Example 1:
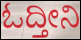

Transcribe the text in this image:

ಓದ್ತೀನಿ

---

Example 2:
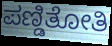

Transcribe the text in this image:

ಪಣ್ಡಿತೋತಿ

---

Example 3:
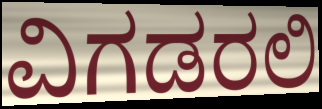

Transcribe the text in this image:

ವಿಗಡರಲಿ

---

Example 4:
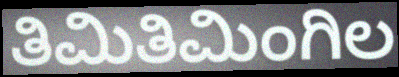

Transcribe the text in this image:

ತಿಮಿತಿಮಿಂಗಿಲ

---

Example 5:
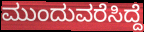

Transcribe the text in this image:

ಮುಂದುವರೆಸಿದ್ದೆ